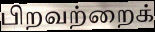
பிறவற்றைக்